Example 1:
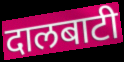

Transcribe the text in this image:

दालबाटी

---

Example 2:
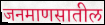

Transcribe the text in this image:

जनमाणसातील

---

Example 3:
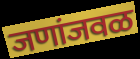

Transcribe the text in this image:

जणांजवळ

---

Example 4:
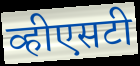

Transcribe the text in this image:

व्हीएसटी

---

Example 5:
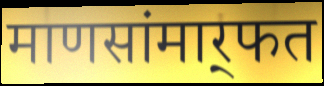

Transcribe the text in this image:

माणसांमार्फत